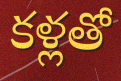
కళ్లతో